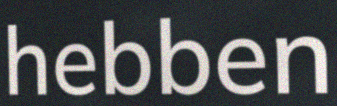
hebben